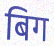
बिग